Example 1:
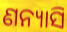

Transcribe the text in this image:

ଣନ୍ୟାସି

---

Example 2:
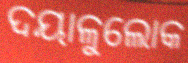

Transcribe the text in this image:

ଦୟାଳୁଲୋକ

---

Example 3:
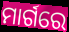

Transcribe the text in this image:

ମାର୍ଗରେ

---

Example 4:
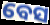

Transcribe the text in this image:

ବେସ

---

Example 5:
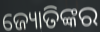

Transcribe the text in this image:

ଜ୍ୟୋତିଙ୍କର